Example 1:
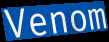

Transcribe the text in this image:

Venom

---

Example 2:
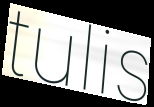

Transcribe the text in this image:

tulis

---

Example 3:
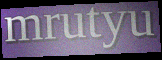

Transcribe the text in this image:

mrutyu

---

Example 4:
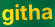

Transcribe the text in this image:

githa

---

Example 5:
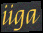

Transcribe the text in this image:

iiga